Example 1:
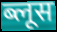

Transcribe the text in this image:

ब्लूस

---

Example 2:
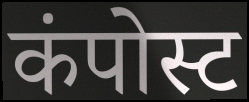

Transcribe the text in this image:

कंपोस्ट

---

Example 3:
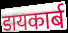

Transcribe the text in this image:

डायकार्ब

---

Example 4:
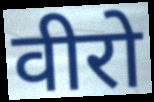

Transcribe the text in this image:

वीरो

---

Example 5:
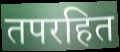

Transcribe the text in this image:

तपरहित